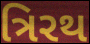
ત્રિરથ